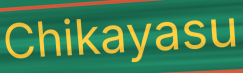
Chikayasu